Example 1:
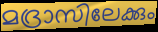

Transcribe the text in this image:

മദ്രാസിലേക്കും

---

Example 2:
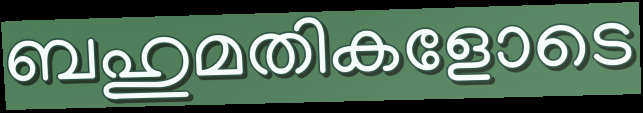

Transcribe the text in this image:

ബഹുമതികളോടെ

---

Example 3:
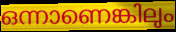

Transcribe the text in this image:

ഒന്നാണെങ്കിലും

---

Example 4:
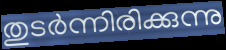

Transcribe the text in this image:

തുടർന്നിരിക്കുന്നു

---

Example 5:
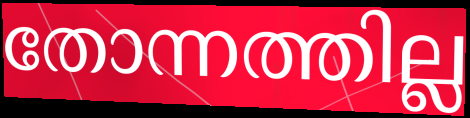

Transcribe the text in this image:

തോന്നത്തില്ല